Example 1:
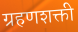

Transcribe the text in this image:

ग्रहणशक्ती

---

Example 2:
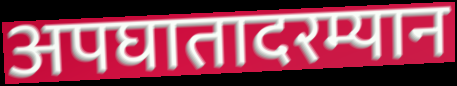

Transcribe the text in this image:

अपघातादरम्यान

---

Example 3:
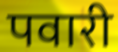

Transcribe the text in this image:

पवारी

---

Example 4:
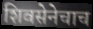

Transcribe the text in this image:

शिवसेनेचाच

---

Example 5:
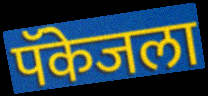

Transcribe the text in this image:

पॅकेजला